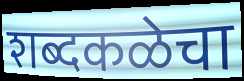
शब्दकळेचा